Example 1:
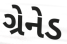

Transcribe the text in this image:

ગ્રેનેડ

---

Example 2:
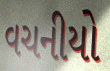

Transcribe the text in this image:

વચનીયો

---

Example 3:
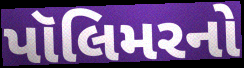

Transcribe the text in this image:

પૉલિમરનો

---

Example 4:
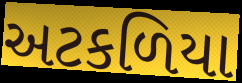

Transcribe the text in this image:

અટકળિયા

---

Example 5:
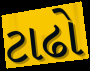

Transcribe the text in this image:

ટાઢો